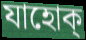
যাহোক্